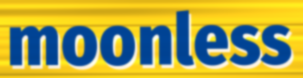
moonless